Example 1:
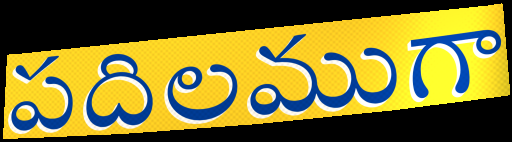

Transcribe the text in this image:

పదిలముగా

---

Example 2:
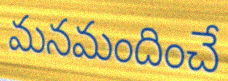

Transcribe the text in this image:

మనమందించే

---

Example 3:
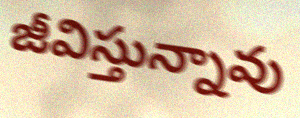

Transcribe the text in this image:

జీవిస్తున్నావు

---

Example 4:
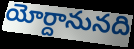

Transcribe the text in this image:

యోర్దానునది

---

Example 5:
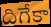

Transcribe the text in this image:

దిగేకా